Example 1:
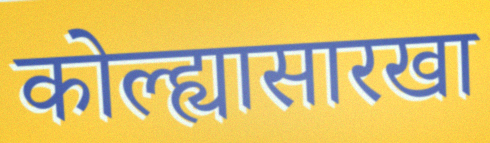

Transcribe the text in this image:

कोल्ह्यासारखा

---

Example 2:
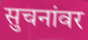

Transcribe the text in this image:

सुचनांवर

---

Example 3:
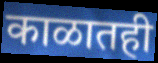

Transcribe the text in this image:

काळातही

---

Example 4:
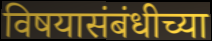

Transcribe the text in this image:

विषयासंबंधीच्या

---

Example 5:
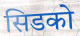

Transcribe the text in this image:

सिडको